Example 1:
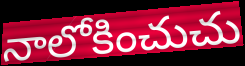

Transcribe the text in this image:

నాలోకించుచు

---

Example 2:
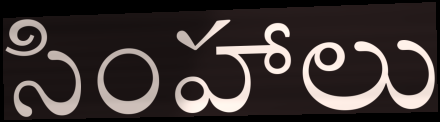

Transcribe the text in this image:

సింహాలు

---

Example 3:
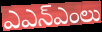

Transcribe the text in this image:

ఎఎన్ఎంలు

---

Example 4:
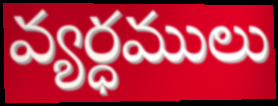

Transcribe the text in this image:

వ్యర్ధములు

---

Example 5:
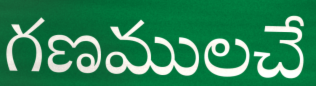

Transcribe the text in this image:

గణములచే